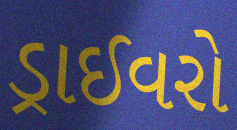
ડ્રાઈવરો